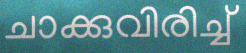
ചാക്കുവിരിച്ച്